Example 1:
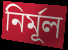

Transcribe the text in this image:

নির্মূল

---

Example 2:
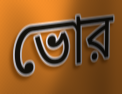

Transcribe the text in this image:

ভোর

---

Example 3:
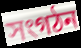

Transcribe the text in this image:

সংগঠন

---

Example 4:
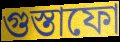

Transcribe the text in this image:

গুস্তাফো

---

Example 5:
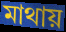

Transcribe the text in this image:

মাথায়